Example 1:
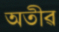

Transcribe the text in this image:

অতীৱ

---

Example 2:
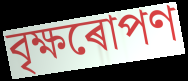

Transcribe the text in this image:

বৃক্ষৰোপণ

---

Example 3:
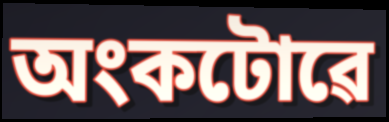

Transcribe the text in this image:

অংকটোৱে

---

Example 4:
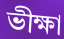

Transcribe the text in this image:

ভীক্ষা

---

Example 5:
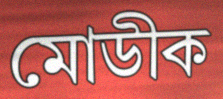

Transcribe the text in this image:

মোডীক